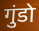
गुंडो